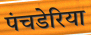
पंचडेरिया